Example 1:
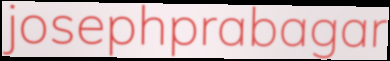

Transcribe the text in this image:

josephprabagar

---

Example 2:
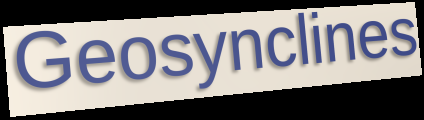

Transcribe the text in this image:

Geosynclines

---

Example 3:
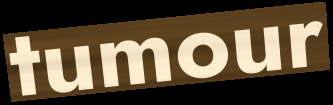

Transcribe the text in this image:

tumour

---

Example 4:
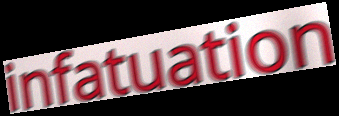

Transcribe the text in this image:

infatuation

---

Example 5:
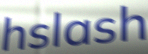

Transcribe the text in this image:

hslash